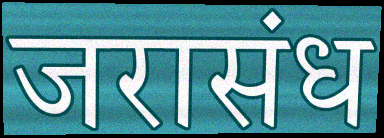
जरासंध